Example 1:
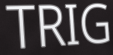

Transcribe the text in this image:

TRIG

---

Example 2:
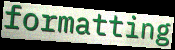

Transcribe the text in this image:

formatting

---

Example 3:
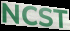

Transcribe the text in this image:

NCST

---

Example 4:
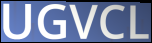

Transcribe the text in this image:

UGVCL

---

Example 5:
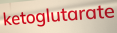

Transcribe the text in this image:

ketoglutarate